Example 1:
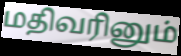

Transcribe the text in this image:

மதிவரினும்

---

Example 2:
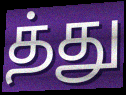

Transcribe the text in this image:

த்து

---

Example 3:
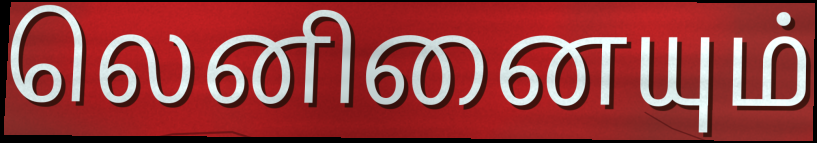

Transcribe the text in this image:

லெனினையும்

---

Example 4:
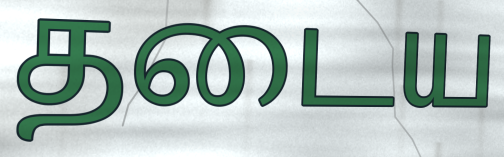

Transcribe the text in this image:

தடைய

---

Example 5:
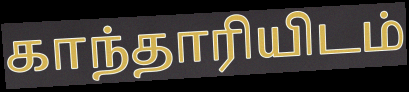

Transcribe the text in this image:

காந்தாரியிடம்